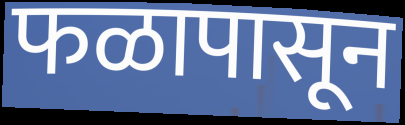
फळापासून